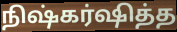
நிஷ்கர்ஷித்த